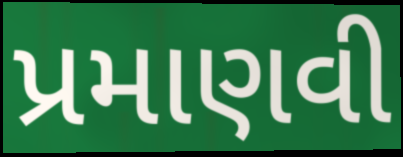
પ્રમાણવી